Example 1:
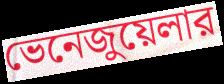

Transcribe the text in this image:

ভেনেজুয়েলার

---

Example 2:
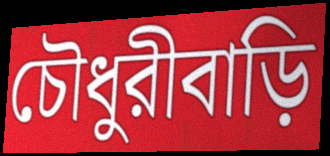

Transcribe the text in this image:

চৌধুরীবাড়ি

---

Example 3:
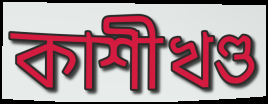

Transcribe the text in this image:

কাশীখণ্ড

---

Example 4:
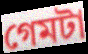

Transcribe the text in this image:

গেমটা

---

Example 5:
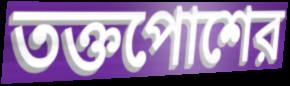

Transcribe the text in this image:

তক্তপোশের